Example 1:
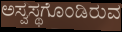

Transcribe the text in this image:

ಅಸ್ವಸ್ಥಗೊಂಡಿರುವ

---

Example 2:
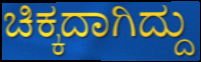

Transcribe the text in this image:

ಚಿಕ್ಕದಾಗಿದ್ದು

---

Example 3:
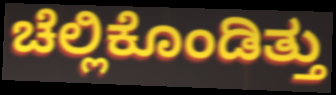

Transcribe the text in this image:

ಚೆಲ್ಲಿಕೊಂಡಿತ್ತು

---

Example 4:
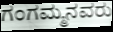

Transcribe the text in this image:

ಗಂಗಮ್ಮನವರು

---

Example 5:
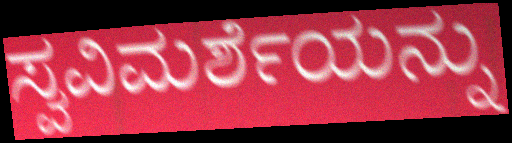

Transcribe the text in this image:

ಸ್ವವಿಮರ್ಶೆಯನ್ನು